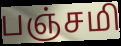
பஞ்சமி